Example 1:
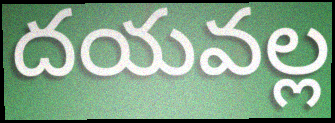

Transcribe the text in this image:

దయవల్ల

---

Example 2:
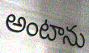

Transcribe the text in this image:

అంటాను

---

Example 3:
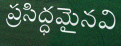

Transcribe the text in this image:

ప్రసిద్ధమైనవి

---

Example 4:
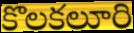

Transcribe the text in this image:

కొలకలూరి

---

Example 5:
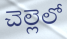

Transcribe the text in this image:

చెల్లెలో